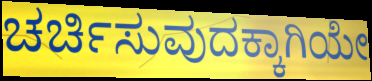
ಚರ್ಚಿಸುವುದಕ್ಕಾಗಿಯೇ